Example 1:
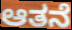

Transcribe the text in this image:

ಆತನೆ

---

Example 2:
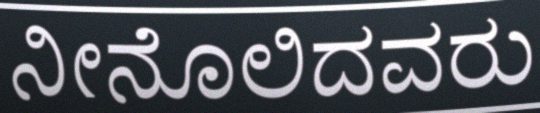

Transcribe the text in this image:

ನೀನೊಲಿದವರು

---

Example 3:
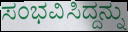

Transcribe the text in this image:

ಸಂಭವಿಸಿದ್ದನ್ನು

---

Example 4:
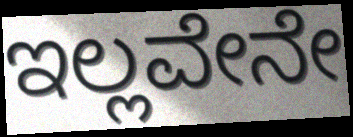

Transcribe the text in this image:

ಇಲ್ಲವೇನೇ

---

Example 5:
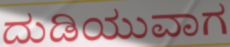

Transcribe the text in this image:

ದುಡಿಯುವಾಗ